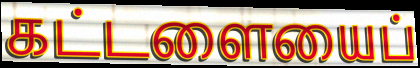
கட்டளையைப்